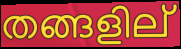
തങ്ങളില്